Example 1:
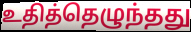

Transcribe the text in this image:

உதித்தெழுந்தது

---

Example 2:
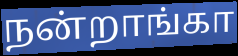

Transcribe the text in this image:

நன்றாங்கா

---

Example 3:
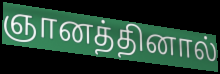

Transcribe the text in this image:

ஞானத்தினால்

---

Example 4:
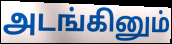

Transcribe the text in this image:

அடங்கினும்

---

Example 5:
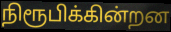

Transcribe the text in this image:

நிரூபிக்கின்றன